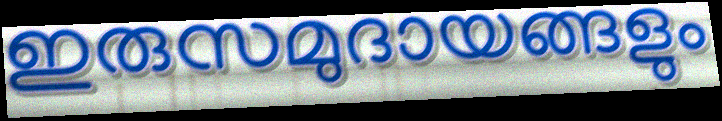
ഇരുസമുദായങ്ങളും